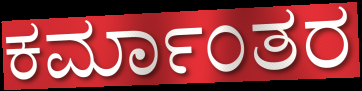
ಕರ್ಮಾಂತರ